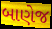
બાણેજ